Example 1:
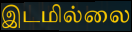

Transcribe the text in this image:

இடமில்லை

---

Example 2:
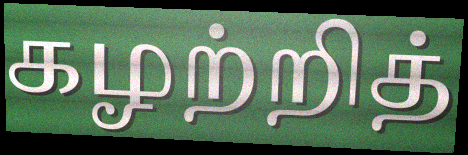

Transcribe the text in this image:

கழற்றித்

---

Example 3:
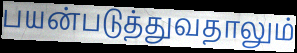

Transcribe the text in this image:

பயன்படுத்துவதாலும்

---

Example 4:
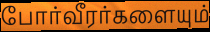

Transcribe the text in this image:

போர்வீரர்களையும்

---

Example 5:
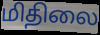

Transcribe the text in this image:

மிதிலை